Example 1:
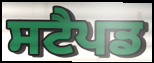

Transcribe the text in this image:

ਸਟੈਪਡ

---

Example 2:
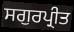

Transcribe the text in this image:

ਸਗੁਰਪ੍ਰੀਤ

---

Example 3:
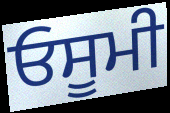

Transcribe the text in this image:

ਓਸੂਮੀ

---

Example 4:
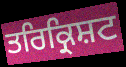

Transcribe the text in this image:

ਤਰਿਕ੍ਰਿਸ਼ਟ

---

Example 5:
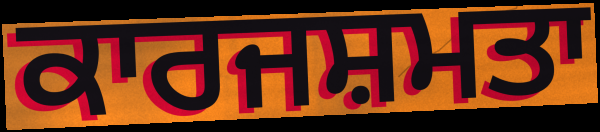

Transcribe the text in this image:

ਕਾਰਜਸ਼ਮਤਾ